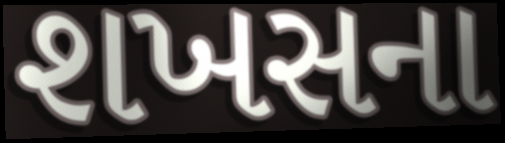
શખસના